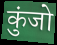
कुंजो